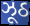
ઝૂઠ